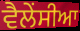
ਵੈਲੇਂਸੀਆ